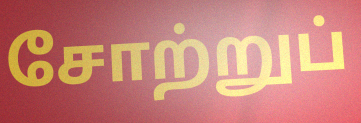
சோற்றுப்